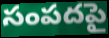
సంపదపై